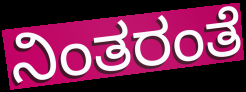
ನಿಂತರಂತೆ